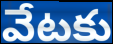
వేటకు